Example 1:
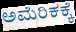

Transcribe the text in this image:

ಅಮೆರಿಕಕ್ಕೆ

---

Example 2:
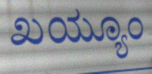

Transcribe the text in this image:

ಖಯ್ಯೂಂ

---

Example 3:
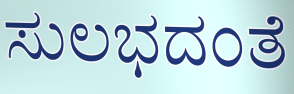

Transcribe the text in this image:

ಸುಲಭದಂತೆ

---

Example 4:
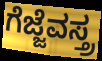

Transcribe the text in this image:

ಗೆಜ್ಜೆವಸ್ತ್ರ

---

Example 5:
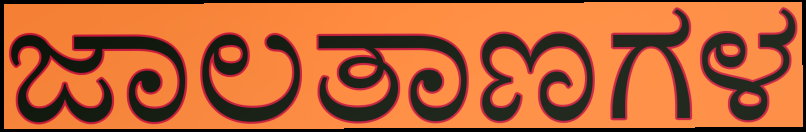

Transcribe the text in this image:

ಜಾಲತಾಣಗಳ